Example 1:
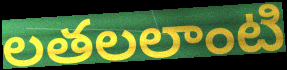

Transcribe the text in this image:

లతలలాంటి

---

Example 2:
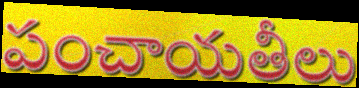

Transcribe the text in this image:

పంచాయతీలు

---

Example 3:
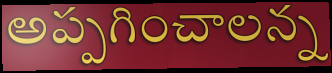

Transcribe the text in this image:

అప్పగించాలన్న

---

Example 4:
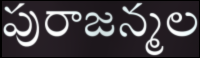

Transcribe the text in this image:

పురాజన్మల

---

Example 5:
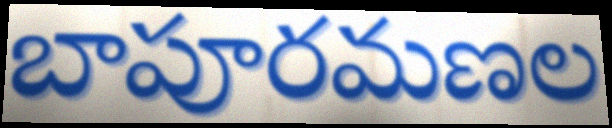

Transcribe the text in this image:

బాపూరమణల